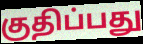
குதிப்பது